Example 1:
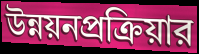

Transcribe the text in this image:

উন্নয়নপ্রক্রিয়ার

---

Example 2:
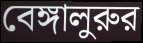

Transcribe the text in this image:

বেঙ্গালুরুর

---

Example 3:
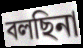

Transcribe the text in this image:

বলছিনা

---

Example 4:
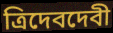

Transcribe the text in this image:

ত্রিদেবদেবী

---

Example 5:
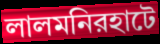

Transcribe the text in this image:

লালমনিরহাটে